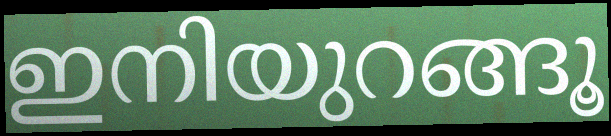
ഇനിയുറങ്ങൂ